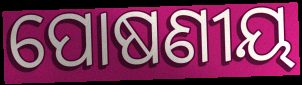
ପୋଷଣୀୟ